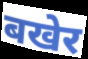
बखेर